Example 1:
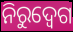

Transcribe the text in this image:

ନିରୁଦ୍ବେଗ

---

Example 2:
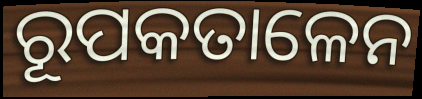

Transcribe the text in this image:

ରୂପକତାଳେନ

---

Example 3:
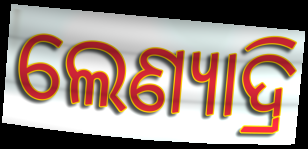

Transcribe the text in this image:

ଲେଣ୍ୟାଦ୍ରି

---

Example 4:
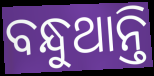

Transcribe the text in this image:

ବନ୍ଧୁଥାନ୍ତି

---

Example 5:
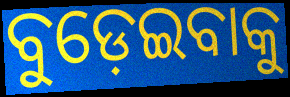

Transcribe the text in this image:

ବୁଡ଼େଇବାକୁ